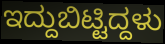
ಇದ್ದುಬಿಟ್ಟಿದ್ದಳು